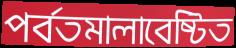
পর্বতমালাবেষ্টিত